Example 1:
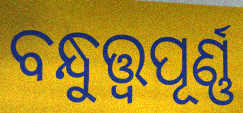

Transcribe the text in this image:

ବନ୍ଧୁତ୍ତ୍ୱପୂର୍ଣ୍ଣ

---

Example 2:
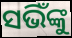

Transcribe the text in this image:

ସଭିଁଙ୍କୁ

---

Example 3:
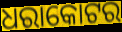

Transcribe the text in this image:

ଧରାକୋଟର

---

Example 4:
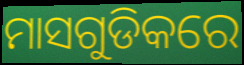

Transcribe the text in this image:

ମାସଗୁଡିକରେ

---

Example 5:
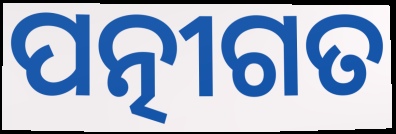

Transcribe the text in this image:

ପତ୍ନୀଗତ